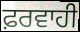
ਫ਼ਰਵਾਹੀ